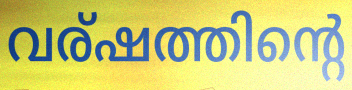
വര്ഷത്തിന്റെ